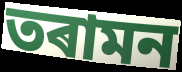
তৰামন